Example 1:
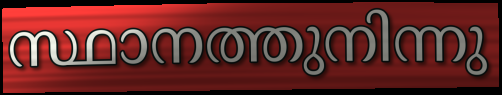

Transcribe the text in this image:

സ്ഥാനത്തുനിന്നു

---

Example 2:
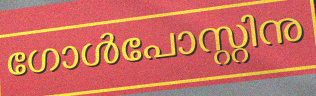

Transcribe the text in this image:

ഗോൾപോസ്റ്റിനു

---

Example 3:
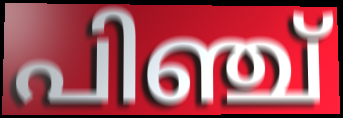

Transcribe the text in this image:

പിഞ്ച്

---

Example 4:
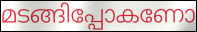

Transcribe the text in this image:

മടങ്ങിപ്പോകണോ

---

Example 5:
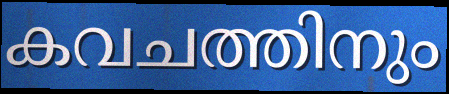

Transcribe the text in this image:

കവചത്തിനും